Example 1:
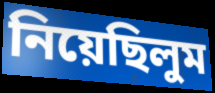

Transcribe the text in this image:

নিয়েছিলুম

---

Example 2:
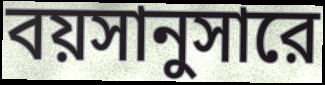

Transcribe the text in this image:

বয়সানুসারে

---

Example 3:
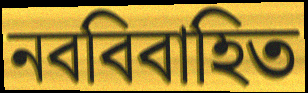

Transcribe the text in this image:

নববিবাহিত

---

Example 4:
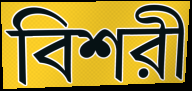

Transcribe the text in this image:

বিশরী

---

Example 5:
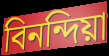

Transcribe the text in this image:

বিনন্দিয়া